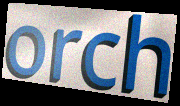
orch